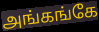
அங்கங்கே